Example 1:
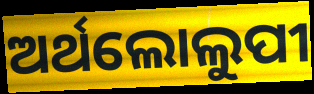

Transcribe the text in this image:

ଅର୍ଥଲୋଲୁପୀ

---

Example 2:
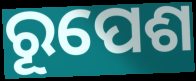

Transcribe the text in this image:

ରୂପେଶ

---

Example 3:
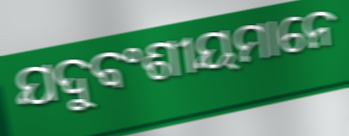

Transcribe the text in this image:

ଯଦୁବଂଶୀୟମାନେ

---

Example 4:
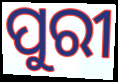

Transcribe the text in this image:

ପୁରୀ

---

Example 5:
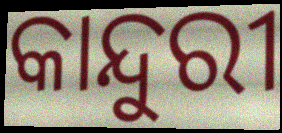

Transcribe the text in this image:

କାନ୍ଦୁରୀ